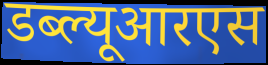
डब्ल्यूआरएस